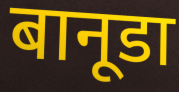
बानूडा